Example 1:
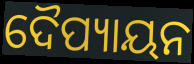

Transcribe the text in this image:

ଦୈପ୍ୟାୟନ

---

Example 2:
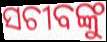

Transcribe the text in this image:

ସଚୀବଙ୍କୁ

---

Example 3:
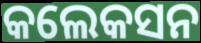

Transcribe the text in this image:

କଲେକସନ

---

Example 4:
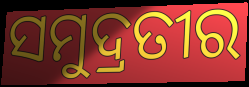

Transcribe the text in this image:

ସମୁଦ୍ରତୀର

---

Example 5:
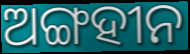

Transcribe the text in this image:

ଅଙ୍ଗହୀନ